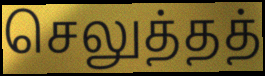
செலுத்தத்